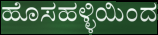
ಹೊಸಹಳ್ಳಿಯಿಂದ